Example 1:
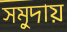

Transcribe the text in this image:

সমুদায়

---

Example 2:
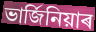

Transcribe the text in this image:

ভাৰ্জিনিয়াৰ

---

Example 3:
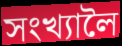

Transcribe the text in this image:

সংখ্যালৈ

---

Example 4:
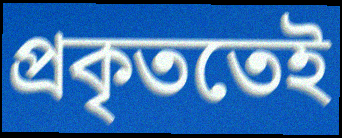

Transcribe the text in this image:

প্ৰকৃততেই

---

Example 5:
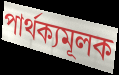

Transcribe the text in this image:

পাৰ্থক্যমূলক